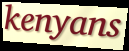
kenyans